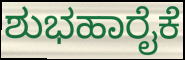
ಶುಭಹಾರೈಕೆ